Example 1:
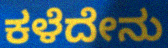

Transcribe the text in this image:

ಕಳೆದೇನು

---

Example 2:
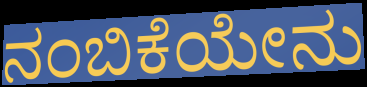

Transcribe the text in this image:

ನಂಬಿಕೆಯೇನು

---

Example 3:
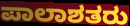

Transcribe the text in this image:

ಪಾಲಾಶತರು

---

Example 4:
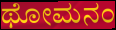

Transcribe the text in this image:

ಥೋಮನಂ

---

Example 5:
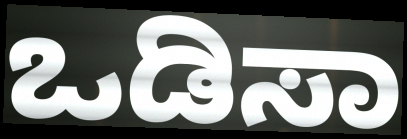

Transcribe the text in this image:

ಒಡಿಸಾ